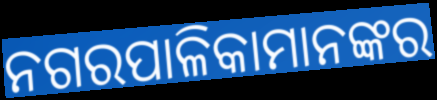
ନଗରପାଳିକାମାନଙ୍କର